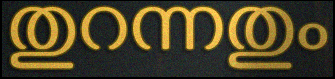
തുറന്നതും